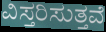
ವಿಸ್ತರಿಸುತ್ತವೆ